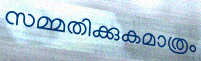
സമ്മതിക്കുകമാത്രം